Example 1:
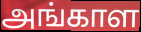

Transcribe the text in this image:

அங்காள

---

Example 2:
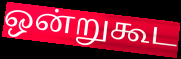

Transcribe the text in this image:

ஒன்றுகூட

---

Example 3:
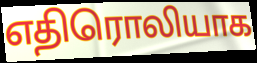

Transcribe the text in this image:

எதிரொலியாக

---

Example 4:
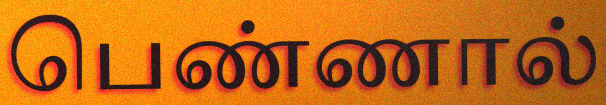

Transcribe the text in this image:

பெண்ணால்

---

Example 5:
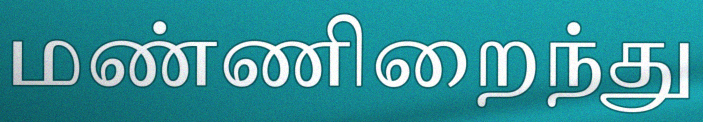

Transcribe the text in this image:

மண்ணிறைந்து